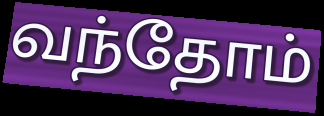
வந்தோம்